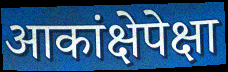
आकांक्षेपेक्षा